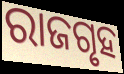
ରାଜଗୃହ